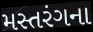
મસ્તરંગના